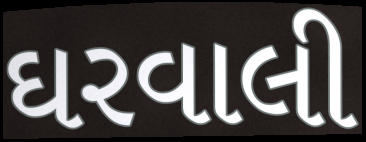
ઘરવાલી